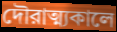
দৌরাত্ম্যকালে